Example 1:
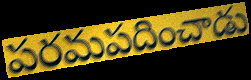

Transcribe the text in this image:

పరమపదించాడు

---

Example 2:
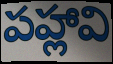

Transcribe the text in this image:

పహ్లావి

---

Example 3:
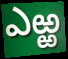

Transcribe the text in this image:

ఎఱ్ఱ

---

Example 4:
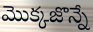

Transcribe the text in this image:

మొక్కజొన్నే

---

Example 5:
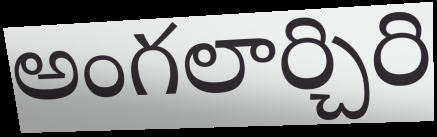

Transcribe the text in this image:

అంగలార్చిరి